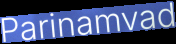
Parinamvad